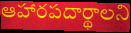
ఆహారపదార్థాలని